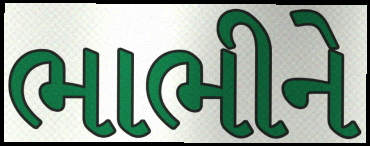
ભાભીને